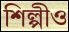
শিল্পীও